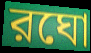
রঘো